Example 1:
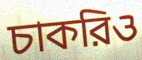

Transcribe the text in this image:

চাকরিও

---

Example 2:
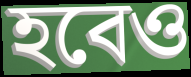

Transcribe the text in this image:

হবেও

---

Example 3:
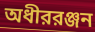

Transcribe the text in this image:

অধীররঞ্জন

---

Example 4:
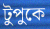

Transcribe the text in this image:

টুপুকে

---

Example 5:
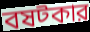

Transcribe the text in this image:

বষট্কার